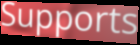
Supports